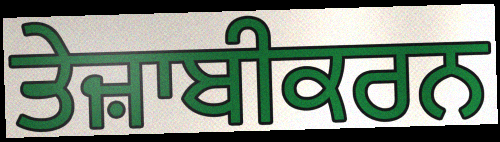
ਤੇਜ਼ਾਬੀਕਰਨ